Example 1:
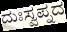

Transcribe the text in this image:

ದುಃಸ್ವಪ್ನದ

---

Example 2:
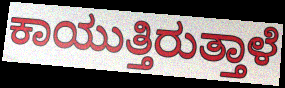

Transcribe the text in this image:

ಕಾಯುತ್ತಿರುತ್ತಾಳೆ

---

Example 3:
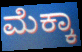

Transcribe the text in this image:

ಮೆಕ್ಕಾ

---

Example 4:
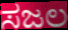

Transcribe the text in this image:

ಸಜಲ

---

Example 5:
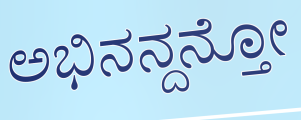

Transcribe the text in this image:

ಅಭಿನನ್ದನ್ತೋ